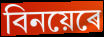
বিনয়েৰে